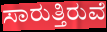
ಸಾರುತ್ತಿರುವೆ